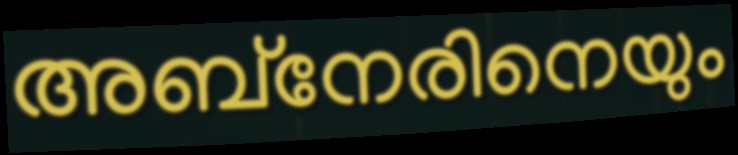
അബ്നേരിനെയും